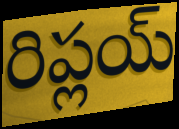
రిప్లయ్